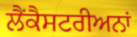
ਲੈਂਕੈਸਟਰੀਅਨਾਂ